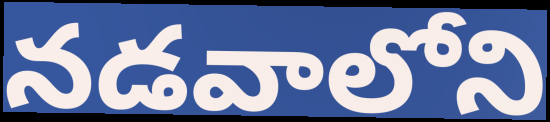
నడవాలోని